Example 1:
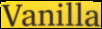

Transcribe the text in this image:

Vanilla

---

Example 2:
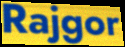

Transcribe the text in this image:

Rajgor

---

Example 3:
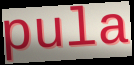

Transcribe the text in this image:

pula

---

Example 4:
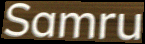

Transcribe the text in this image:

Samru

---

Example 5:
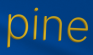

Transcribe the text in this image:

pine